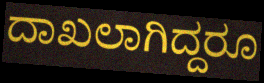
ದಾಖಲಾಗಿದ್ದರೂ